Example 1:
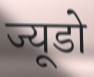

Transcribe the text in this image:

ज्यूडो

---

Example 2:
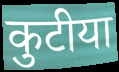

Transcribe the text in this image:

कुटीया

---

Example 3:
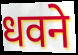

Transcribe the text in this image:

धवने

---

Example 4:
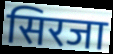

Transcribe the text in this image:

सिरजा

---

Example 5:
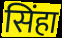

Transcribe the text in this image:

सिंहा